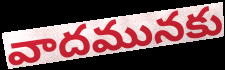
వాదమునకు